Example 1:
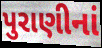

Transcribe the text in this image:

પુરાણીનાં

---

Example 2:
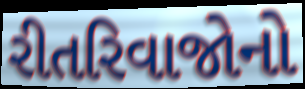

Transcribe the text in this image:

રીતરિવાજોનો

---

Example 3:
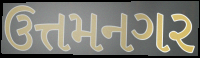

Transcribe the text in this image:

ઉત્તમનગર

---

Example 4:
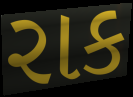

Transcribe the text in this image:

રાક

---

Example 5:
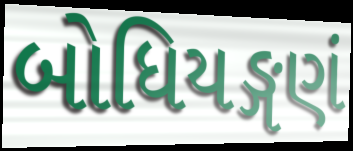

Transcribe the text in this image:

બોધિયઙ્ગણં